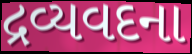
દ્રવ્યવદના